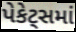
પેકેટ્સમાં